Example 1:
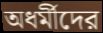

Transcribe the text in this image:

অধর্মীদের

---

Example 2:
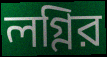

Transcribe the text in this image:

লগ্নির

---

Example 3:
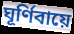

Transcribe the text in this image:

ঘূর্ণিবায়ে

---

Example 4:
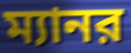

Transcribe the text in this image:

ম্যানর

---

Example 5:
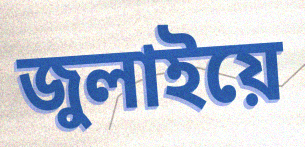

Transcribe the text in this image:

জুলাইয়ে